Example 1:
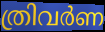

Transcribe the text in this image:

ത്രിവർണ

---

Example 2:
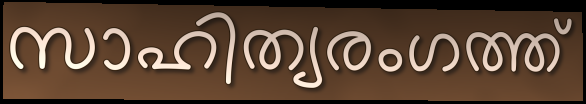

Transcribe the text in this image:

സാഹിത്യരംഗത്ത്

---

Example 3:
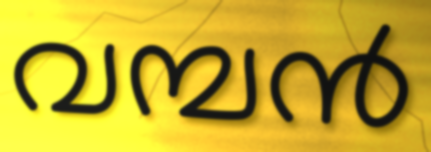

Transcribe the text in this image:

വമ്പൻ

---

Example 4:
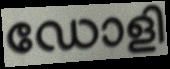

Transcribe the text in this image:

ഡോളി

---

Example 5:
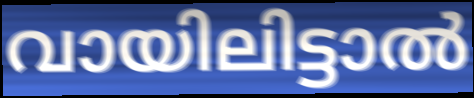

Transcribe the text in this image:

വായിലിട്ടാൽ